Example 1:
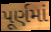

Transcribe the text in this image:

પૂર્ણમાં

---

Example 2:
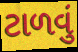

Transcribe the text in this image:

ટાળવું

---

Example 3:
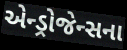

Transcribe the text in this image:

એન્ડ્રોજેન્સના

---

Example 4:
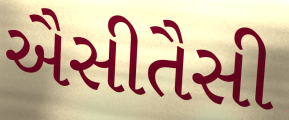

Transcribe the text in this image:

ઐસીતૈસી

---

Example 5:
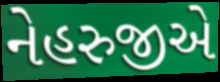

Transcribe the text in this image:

નેહરુજીએ